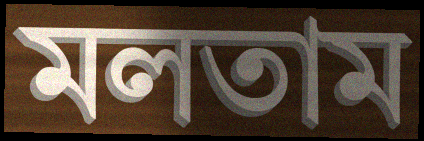
মলতাম